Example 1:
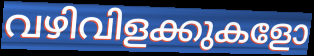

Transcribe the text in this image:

വഴിവിളക്കുകളോ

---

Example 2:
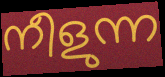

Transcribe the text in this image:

നീളുന്ന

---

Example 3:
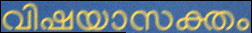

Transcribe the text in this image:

വിഷയാസക്തം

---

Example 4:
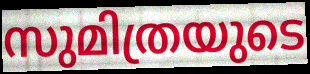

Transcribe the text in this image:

സുമിത്രയുടെ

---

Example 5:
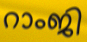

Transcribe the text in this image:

റാംജി